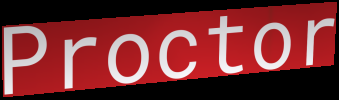
Proctor